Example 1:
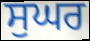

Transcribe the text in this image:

ਸੁਘਰ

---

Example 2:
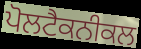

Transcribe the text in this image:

ਪੋਲਟੈਕਨੀਕਲ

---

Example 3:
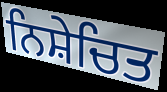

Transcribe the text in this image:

ਨਿਸ਼ੇਚਿਤ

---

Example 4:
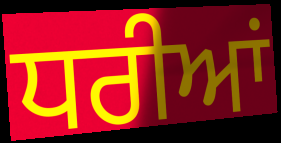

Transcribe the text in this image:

ਧਰੀਆਂ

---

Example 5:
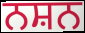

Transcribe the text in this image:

ਨਸ਼ਨ